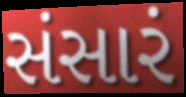
સંસારં